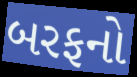
બરફનો